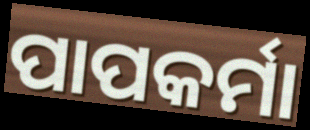
ପାପକର୍ମା